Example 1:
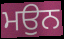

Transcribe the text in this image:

ਮਉਨ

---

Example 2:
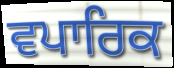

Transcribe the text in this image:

ਵਪਾਰਿਕ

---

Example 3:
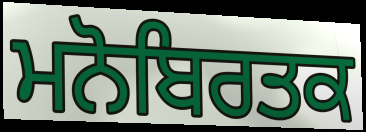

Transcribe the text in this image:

ਮਨੋਬਿਰਤਕ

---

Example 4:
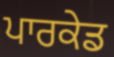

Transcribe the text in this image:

ਪਾਰਕੇਡ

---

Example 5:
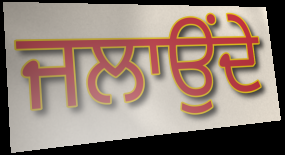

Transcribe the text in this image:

ਜਲਾਉਂਦੇ